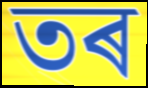
তৰ